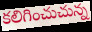
కలిగించుచున్న